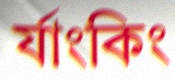
র্যাংকিং